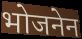
भोजनेन